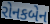
રોનકબેન